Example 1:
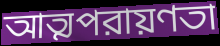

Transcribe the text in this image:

আত্মপরায়ণতা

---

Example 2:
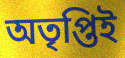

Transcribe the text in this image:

অতৃপ্তিই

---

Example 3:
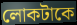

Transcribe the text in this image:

লোকটাকে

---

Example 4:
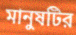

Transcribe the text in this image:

মানুষটির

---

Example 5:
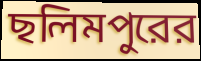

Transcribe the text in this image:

ছলিমপুরের